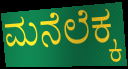
ಮನೆಲೆಕ್ಕ